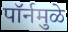
पॉर्नमुळे